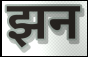
झन